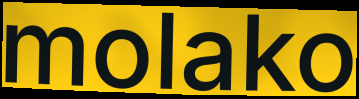
molako